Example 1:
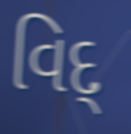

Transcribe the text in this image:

વિદ્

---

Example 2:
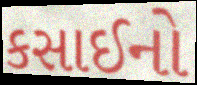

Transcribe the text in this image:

કસાઈનો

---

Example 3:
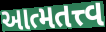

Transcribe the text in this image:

આત્મતત્ત્વ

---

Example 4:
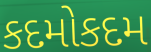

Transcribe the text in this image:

કદમોકદમ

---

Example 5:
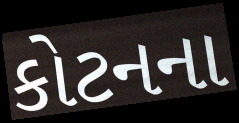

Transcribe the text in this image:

કોટનના